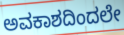
ಅವಕಾಶದಿಂದಲೇ